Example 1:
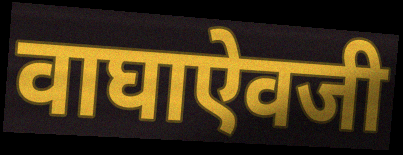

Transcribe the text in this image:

वाघाऐवजी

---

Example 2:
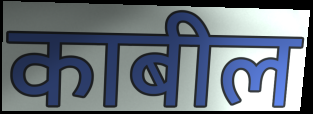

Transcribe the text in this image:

काबील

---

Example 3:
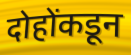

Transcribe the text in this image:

दोहोंकडून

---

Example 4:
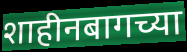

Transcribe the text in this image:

शाहीनबागच्या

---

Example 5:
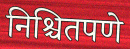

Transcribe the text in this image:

निश्चितपणे